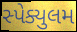
સ્પેક્યુલમ